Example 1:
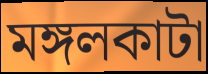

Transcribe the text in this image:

মঙ্গলকাটা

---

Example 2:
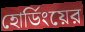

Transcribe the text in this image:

হোর্ডিংয়ের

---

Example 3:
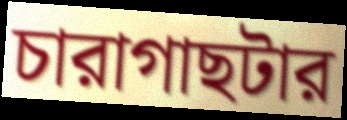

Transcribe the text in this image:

চারাগাছটার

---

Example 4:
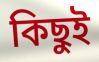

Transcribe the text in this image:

কিছুই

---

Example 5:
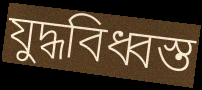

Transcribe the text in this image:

যুদ্ধবিধ্বস্ত